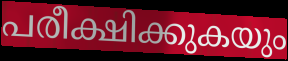
പരീക്ഷിക്കുകയും